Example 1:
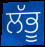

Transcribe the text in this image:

ਲੱਭੂ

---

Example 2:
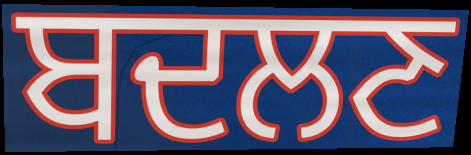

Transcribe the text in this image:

ਬਦਲਣ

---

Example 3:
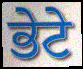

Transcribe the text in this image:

ਭੇਟੇ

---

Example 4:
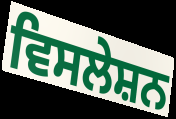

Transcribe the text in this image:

ਵਿਸਲੇਸ਼ਨ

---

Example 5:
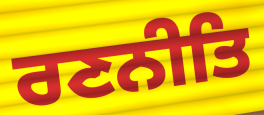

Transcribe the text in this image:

ਰਣਨੀਤਿ